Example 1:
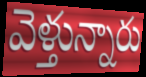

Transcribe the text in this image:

వెళ్తున్నారు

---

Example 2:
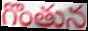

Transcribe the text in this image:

గొంతున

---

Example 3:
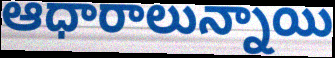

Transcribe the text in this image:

ఆధారాలున్నాయి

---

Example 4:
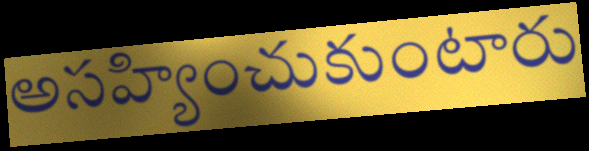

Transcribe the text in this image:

అసహ్యించుకుంటారు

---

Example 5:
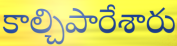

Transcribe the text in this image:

కాల్చిపారేశారు